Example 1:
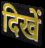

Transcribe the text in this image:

दिखें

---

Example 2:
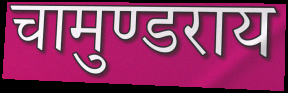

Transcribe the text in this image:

चामुण्डराय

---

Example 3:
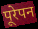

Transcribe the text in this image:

पूरेपन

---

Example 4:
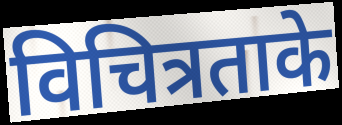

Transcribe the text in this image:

विचित्रताके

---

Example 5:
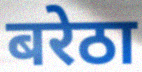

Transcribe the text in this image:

बरेठा